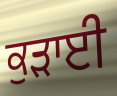
ਕੁੜਾਈ